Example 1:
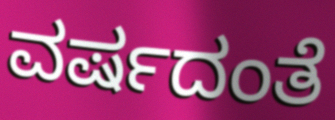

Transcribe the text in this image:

ವರ್ಷದಂತೆ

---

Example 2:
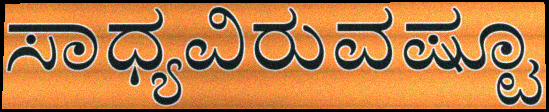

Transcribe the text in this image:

ಸಾಧ್ಯವಿರುವಷ್ಟೂ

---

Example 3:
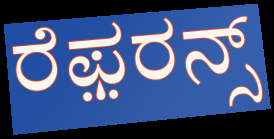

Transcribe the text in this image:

ರೆಫ಼ರನ್ಸ್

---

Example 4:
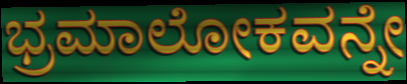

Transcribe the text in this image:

ಭ್ರಮಾಲೋಕವನ್ನೇ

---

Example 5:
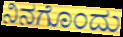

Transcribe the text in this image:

ನಿನಗೊಂದು